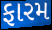
ફારમ